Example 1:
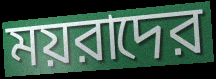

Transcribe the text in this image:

ময়রাদের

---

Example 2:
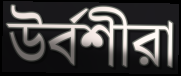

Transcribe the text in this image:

উর্বশীরা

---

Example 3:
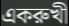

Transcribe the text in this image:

একরুখী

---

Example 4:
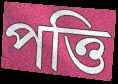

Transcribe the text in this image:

পত্তি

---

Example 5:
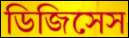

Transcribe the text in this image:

ডিজিসেস